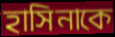
হাসিনাকে